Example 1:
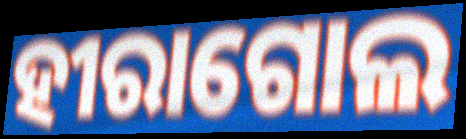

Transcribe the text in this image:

ହୀରାଗୋଲ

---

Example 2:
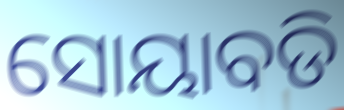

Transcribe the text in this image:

ସୋୟାବଡି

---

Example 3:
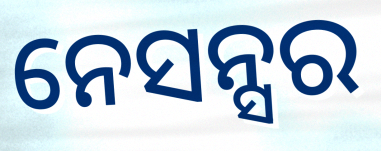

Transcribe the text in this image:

ନେସନ୍ସର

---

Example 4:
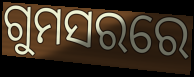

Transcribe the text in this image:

ଗୁମସରରେ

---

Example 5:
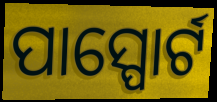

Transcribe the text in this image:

ପାସ୍ପୋର୍ଟ